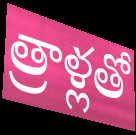
త్రాళ్లతో